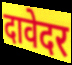
दावेदर